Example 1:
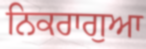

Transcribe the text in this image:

ਨਿਕਰਾਗੁਆ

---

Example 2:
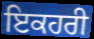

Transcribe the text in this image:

ਇਕਹਰੀ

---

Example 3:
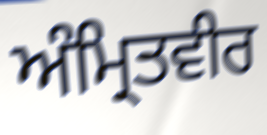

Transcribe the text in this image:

ਅੰਮ੍ਰਿਤਵੀਰ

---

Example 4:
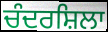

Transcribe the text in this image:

ਚੰਦਰਸ਼ਿਲਾ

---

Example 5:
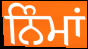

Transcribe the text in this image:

ਨਿੰਮਾਂ